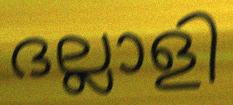
ദല്ലാളി